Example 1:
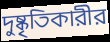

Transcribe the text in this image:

দুষ্কৃতিকারীর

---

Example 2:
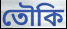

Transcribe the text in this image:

তৌকি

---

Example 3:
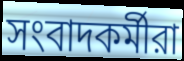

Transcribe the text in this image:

সংবাদকর্মীরা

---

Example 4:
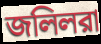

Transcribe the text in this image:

জলিলরা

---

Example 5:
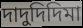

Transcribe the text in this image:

দাদুদিদিমা